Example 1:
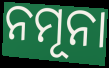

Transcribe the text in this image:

ନମୂନା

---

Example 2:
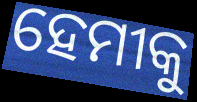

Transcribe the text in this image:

ହେମୀକୁ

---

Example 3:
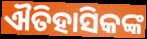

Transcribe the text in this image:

ଐତିହାସିକଙ୍କ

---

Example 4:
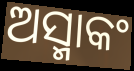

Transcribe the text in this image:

ଅସ୍ମାକଂ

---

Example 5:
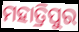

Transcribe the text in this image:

ମହାତ୍ରିପୁର